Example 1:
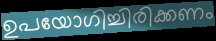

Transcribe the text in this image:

ഉപയോഗിച്ചിരിക്കണം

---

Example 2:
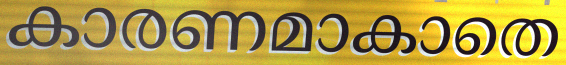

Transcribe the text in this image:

കാരണമാകാതെ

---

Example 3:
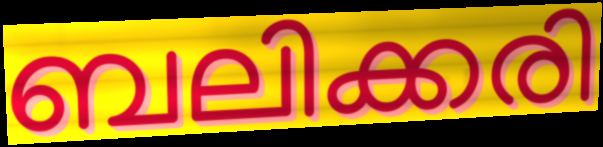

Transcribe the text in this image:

ബലിക്കരി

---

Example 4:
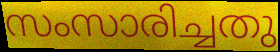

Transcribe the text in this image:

സംസാരിച്ചതു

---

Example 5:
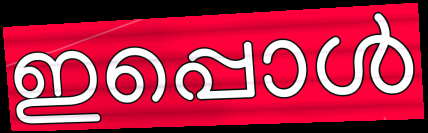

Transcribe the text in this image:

ഇപ്പൊൾ